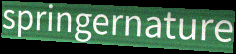
springernature